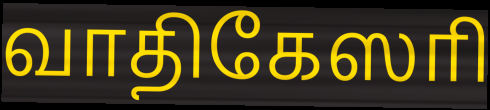
வாதிகேஸரி